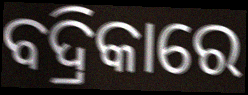
ବଦ୍ରିକାରେ